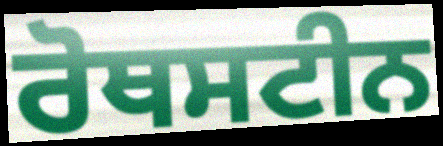
ਰੋਥਸਟੀਨ